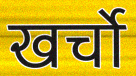
खर्चो